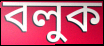
বলুক